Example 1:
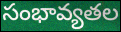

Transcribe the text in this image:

సంభావ్యతల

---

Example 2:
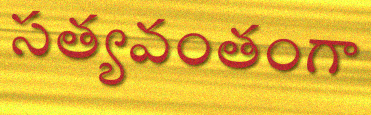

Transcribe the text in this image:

సత్యవంతంగా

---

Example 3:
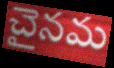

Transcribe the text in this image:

చైనమ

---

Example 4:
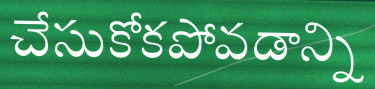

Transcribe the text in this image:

చేసుకోకపోవడాన్ని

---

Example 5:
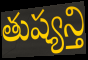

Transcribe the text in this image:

తుష్యన్తి